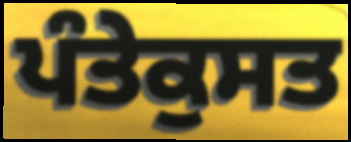
ਪੰਤੇਕੁਸਤ